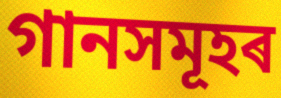
গানসমূহৰ